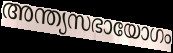
അന്ത്യസഭായോഗം